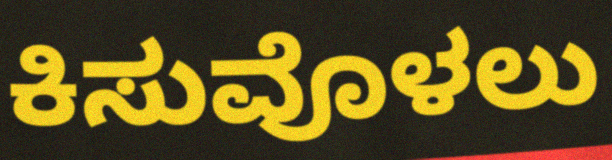
ಕಿಸುವೊಳಲು